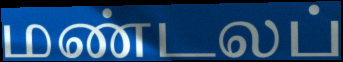
மண்டலப்